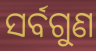
ସର୍ବଗୁଣ